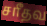
சரீதவ